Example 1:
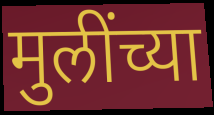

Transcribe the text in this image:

मुलींच्या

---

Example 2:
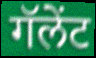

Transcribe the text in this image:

गॅलेंट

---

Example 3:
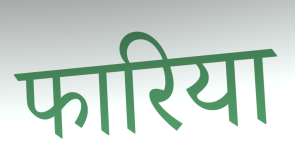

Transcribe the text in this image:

फारिया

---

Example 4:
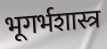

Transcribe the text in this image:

भूगर्भशास्त्र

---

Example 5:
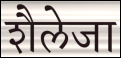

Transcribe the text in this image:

शैलेजा